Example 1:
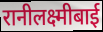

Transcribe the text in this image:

रानीलक्ष्मीबाई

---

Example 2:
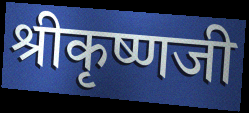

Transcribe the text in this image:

श्रीकृष्णजी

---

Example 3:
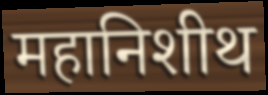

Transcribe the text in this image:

महानिशीथ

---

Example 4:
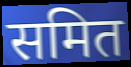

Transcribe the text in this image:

समित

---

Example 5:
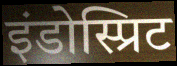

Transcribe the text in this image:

इंडोस्प्रिट